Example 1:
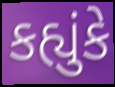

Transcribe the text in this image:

કહ્યુંકે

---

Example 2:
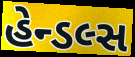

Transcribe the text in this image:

હેન્ડલ્સ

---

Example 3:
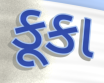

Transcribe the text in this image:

કૂકા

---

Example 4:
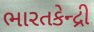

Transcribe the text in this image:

ભારતકેન્દ્રી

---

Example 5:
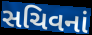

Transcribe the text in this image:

સચિવનાં